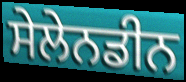
ਸੇਲੇਨਡੀਨ